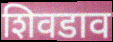
शिवडाव